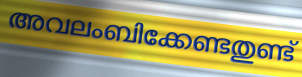
അവലംബിക്കേണ്ടതുണ്ട്